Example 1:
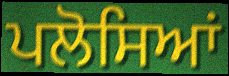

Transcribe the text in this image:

ਪਲੋਸਿਆਂ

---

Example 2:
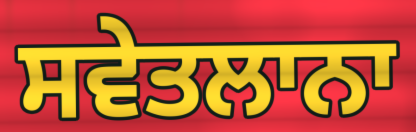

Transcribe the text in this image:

ਸਵੇਤਲਾਨਾ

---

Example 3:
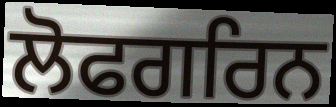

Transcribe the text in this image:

ਲੋਫਗਰਿਨ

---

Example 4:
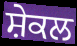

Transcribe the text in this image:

ਸ਼ੇਕਲ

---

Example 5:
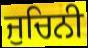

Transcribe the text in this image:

ਜੁਚਿਨੀ